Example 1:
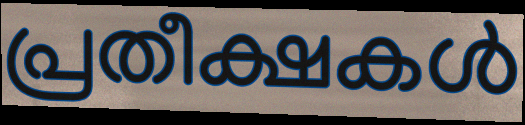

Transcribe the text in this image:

പ്രതീക്ഷകൾ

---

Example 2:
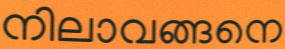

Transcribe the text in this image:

നിലാവങ്ങനെ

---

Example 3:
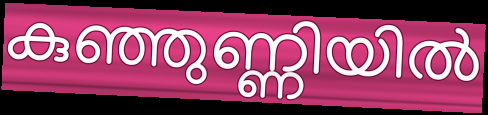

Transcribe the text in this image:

കുഞ്ഞുണ്ണിയിൽ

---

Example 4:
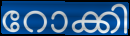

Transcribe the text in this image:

റോക്കി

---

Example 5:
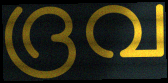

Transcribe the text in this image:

ദ്രവ